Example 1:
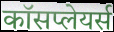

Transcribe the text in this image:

कॉसप्लेयर्स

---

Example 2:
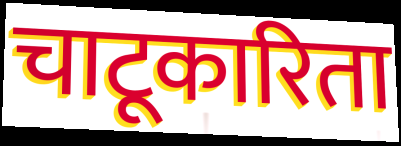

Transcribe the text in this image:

चाटूकारिता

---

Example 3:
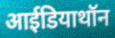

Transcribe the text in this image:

आईडियाथॉन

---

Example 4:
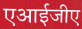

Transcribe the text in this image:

एआईजीए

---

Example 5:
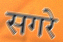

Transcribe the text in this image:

सगरे